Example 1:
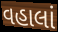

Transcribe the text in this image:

વહાલાં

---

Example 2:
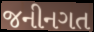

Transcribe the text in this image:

જનીનગત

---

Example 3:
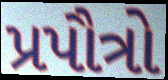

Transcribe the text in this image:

પ્રપૌત્રો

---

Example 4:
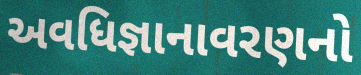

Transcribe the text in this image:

અવધિજ્ઞાનાવરણનો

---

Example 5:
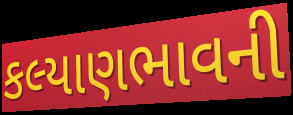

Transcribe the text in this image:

કલ્યાણભાવની